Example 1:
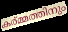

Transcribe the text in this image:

കര്മ്മത്തിനും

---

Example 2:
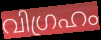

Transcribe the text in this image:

വിഗ്രഹം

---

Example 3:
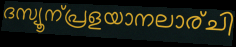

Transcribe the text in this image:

ദസ്യൂന്പ്രളയാനലാര്ചി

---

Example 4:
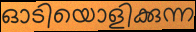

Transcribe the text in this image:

ഓടിയൊളിക്കുന്ന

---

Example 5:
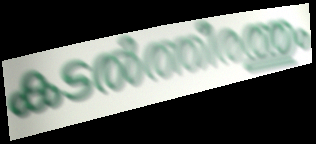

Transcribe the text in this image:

കടൽത്തീരത്തും